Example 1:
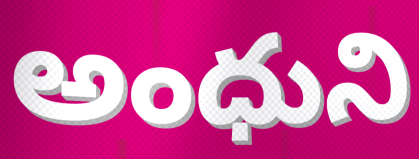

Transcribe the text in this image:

అంధుని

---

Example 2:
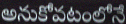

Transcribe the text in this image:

అనుకోవటంలోనే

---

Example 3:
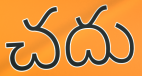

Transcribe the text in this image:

చదు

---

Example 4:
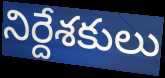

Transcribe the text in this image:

నిర్దేశకులు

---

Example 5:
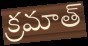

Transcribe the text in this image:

క్రమాత్